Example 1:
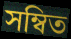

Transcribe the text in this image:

সম্বিত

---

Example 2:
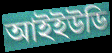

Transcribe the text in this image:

আইইউডি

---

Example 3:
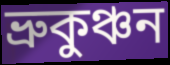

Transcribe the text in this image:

ভ্রুকুঞ্চন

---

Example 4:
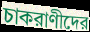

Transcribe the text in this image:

চাকরাণীদের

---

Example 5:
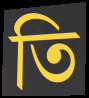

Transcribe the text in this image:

তি